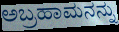
ಅಬ್ರಹಾಮನನ್ನು